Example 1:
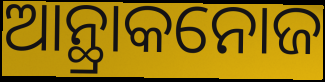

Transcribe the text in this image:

ଆନ୍ଥ୍ରାକନୋଜ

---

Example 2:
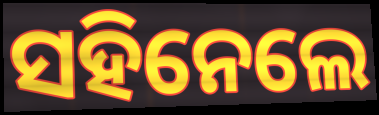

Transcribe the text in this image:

ସହିନେଲେ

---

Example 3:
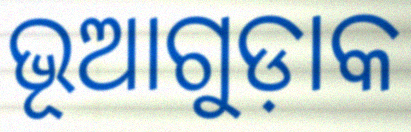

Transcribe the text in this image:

ଭୂଆଗୁଡ଼ାକ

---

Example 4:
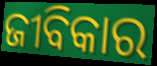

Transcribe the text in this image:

ଜୀବିକାର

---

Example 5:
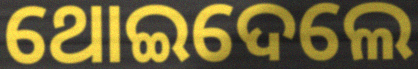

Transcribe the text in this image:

ଥୋଇଦେଲେ